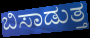
ಬಿಸಾಡುತ್ತ